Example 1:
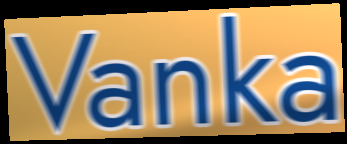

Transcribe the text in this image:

Vanka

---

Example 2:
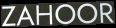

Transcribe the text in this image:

ZAHOOR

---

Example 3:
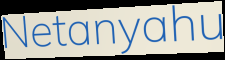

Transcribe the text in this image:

Netanyahu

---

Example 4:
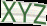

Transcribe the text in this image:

XYZ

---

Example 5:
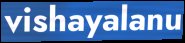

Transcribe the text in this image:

vishayalanu